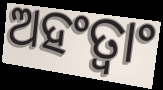
ଅହଂତ୍ୱାଂ